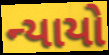
ન્યાયો